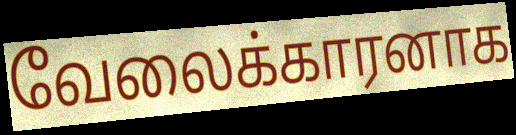
வேலைக்காரனாக